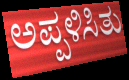
ಅಪ್ಪಳಿಸಿತು